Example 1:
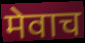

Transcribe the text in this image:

मेवाच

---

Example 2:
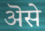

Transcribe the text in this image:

ऄसे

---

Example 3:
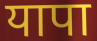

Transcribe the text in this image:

यापा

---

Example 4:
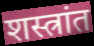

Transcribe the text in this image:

शस्त्रांत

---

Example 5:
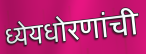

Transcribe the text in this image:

ध्येयधोरणांची